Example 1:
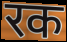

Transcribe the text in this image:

रक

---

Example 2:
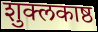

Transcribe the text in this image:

शुक्लकाष्ठ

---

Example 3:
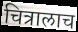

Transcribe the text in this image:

चित्रालाच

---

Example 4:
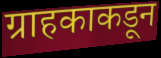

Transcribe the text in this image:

ग्राहकाकडून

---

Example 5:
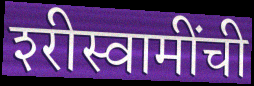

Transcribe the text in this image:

श्रीस्वामींची